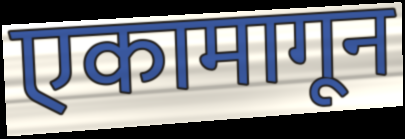
एकामागून